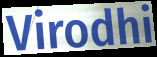
Virodhi